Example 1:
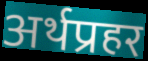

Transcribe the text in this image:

अर्थप्रहर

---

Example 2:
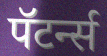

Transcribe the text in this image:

पॅटर्न्स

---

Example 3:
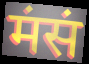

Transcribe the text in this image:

मंसं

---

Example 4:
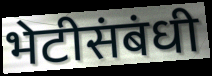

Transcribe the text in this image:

भेटीसंबंधी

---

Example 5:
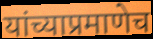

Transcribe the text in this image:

यांच्याप्रमाणेच